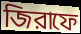
জিরাফে